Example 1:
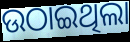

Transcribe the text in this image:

ଉଠାଇଥିଲା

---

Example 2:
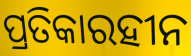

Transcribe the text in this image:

ପ୍ରତିକାରହୀନ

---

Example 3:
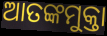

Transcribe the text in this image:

ଆତଙ୍କମୁକ୍ତା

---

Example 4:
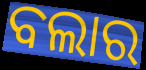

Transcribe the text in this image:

ବଲାର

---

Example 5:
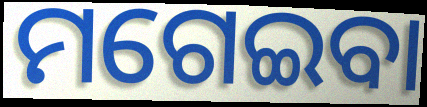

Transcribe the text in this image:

ମଗେଇବା